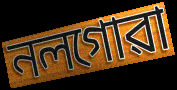
নলগোৱা